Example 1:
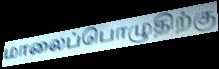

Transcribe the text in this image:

மாலைப்பொழுதிற்கு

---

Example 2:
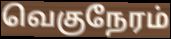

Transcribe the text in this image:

வெகுநேரம்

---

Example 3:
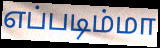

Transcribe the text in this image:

எப்படிம்மா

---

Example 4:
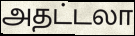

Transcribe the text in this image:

அதட்டலா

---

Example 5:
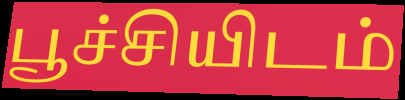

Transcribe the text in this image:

பூச்சியிடம்